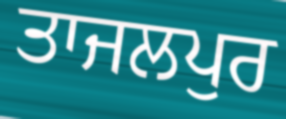
ਤਾਜਲਪੁਰ